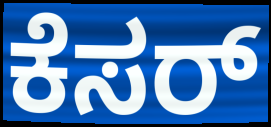
ಕೆಸರ್